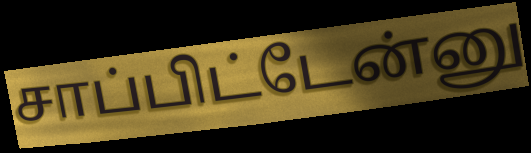
சாப்பிட்டேன்னு